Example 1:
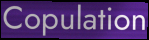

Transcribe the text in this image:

Copulation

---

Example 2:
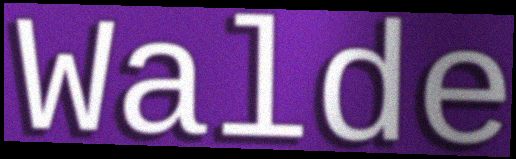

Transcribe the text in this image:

Walde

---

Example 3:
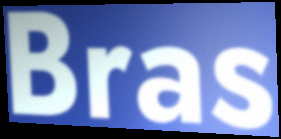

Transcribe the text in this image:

Bras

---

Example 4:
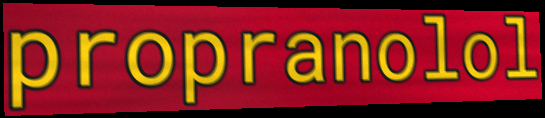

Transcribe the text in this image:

propranolol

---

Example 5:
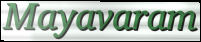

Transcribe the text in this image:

Mayavaram